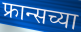
फ्रान्सच्या